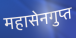
महासेनगुप्त